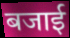
बजाई